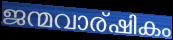
ജന്മവാര്ഷികം